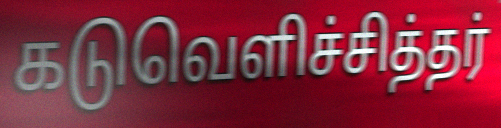
கடுவெளிச்சித்தர்